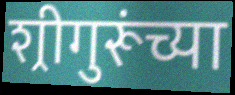
श्रीगुरूंच्या